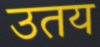
उतय